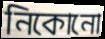
নিকোনো